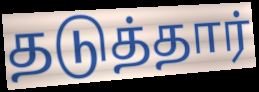
தடுத்தார்